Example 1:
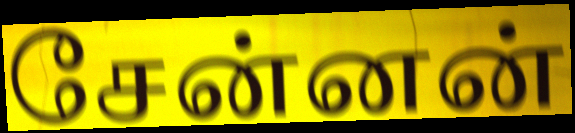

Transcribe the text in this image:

சேன்னன்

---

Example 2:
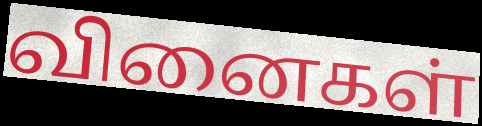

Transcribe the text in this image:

வினைகள்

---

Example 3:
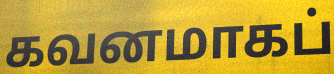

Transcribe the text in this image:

கவனமாகப்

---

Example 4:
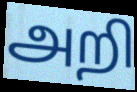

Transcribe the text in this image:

அறி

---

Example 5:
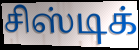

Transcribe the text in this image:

சிஸ்டிக்